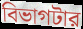
বিভাগটার